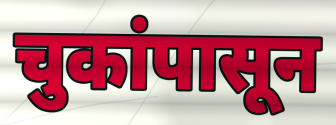
चुकांपासून